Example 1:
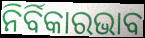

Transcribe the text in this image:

ନିର୍ବିକାରଭାବ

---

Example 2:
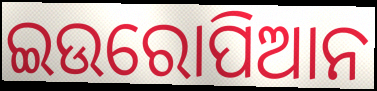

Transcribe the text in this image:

ଇଉରୋପିଆନ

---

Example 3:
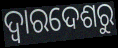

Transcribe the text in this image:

ଦ୍ଵାରଦେଶରୁ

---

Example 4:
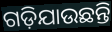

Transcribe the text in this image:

ଗଡ଼ିଯାଉଛନ୍ତି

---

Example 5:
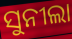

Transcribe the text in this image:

ସୁନୀଲା